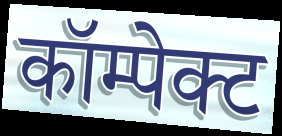
कॉम्पेक्ट